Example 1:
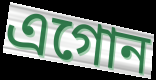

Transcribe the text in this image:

এগোন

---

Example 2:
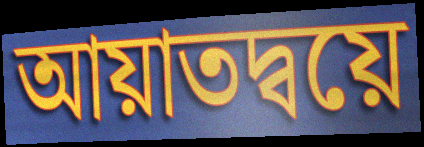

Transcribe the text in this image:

আয়াতদ্বয়ে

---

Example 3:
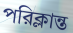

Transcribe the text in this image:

পরিক্লান্ত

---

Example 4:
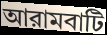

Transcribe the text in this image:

আরামবাটি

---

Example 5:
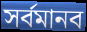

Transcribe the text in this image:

সর্বমানব